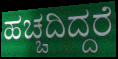
ಹಚ್ಚದಿದ್ದರೆ